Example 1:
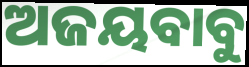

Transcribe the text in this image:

ଅଜୟବାବୁ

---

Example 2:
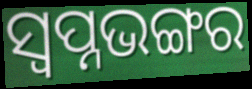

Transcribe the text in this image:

ସ୍ୱପ୍ନଭଙ୍ଗର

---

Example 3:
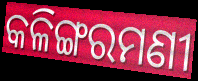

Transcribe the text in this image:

କଳିଙ୍ଗରମଣୀ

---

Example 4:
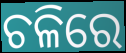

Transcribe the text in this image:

ଚଳିରେ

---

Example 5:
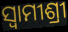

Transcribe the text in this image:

ସ୍ଵାମୀଶ୍ରୀ